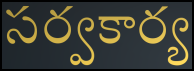
సర్వకార్య